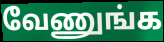
வேணுங்க